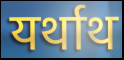
यर्थाथ